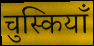
चुस्कियाँ